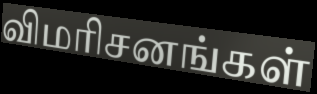
விமரிசனங்கள்